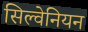
सिल्वेनियन